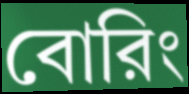
বোরিং